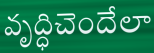
వృద్ధిచెందేలా